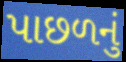
પાછળનું